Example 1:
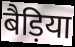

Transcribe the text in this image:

बैड़िया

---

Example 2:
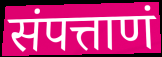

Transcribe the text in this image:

संपत्ताणं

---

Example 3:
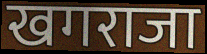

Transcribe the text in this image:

खगराजा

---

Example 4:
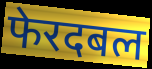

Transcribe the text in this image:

फेरदबल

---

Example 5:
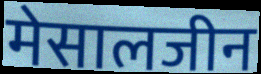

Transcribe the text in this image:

मेसालजीन